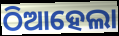
ଠିଆହେଲା